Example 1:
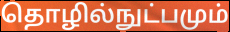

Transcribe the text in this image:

தொழில்நுட்பமும்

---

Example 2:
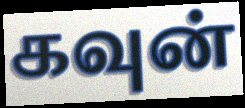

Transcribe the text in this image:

கவுன்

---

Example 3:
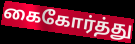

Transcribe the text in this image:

கைகோர்த்து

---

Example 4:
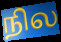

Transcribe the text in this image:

நில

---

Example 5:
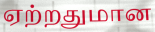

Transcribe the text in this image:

ஏற்றதுமான